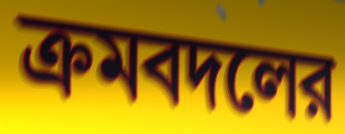
ক্রমবদলের